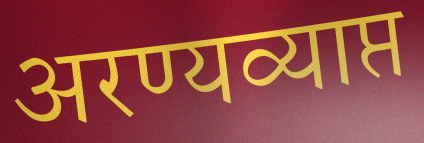
अरण्यव्याप्त